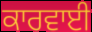
ਕਾਰਵਾਈ